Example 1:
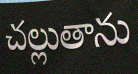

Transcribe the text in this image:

చల్లుతాను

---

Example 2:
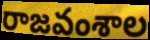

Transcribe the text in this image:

రాజవంశాల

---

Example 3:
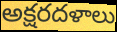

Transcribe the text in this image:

అక్షరదళాలు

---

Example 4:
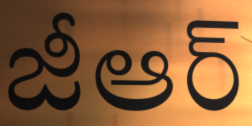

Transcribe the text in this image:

జీఆర్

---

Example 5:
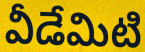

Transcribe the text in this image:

వీడేమిటి